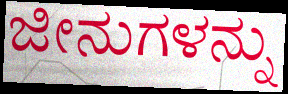
ಜೀನುಗಳನ್ನು